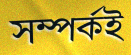
সম্পর্কই